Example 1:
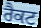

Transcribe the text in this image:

ਰੈਕਟ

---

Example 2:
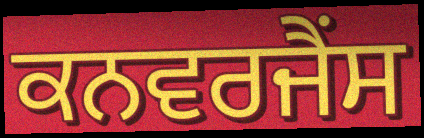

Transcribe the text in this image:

ਕਨਵਰਜੈਂਸ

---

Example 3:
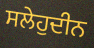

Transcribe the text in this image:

ਸਲੇਹੁਦੀਨ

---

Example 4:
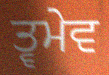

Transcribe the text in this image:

ਤ੍ਵਮੇਵ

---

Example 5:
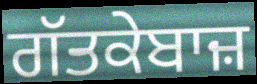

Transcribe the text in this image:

ਗੱਤਕੇਬਾਜ਼